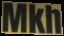
Mkh